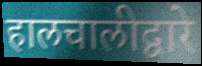
हालचालीद्वारे